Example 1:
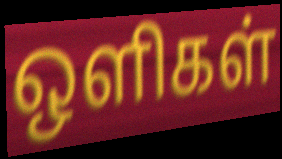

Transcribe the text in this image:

ஒளிகள்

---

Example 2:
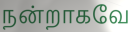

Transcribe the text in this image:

நன்றாகவே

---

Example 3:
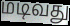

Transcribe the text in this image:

மடிவது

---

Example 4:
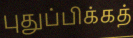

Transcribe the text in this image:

புதுப்பிக்கத்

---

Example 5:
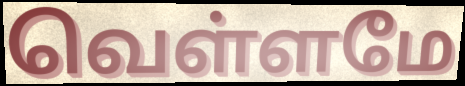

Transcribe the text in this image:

வெள்ளமே